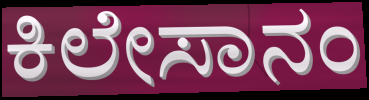
ಕಿಲೇಸಾನಂ